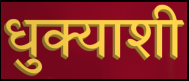
धुक्याशी